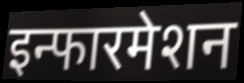
इन्फारमेशन